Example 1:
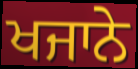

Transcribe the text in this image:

ਖਜਾਨੇ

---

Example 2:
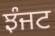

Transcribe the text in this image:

ਝੰਜਟ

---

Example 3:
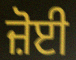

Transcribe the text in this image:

ਜ਼ੋਈ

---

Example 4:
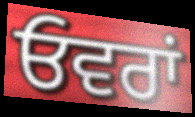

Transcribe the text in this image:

ਓਵਰਾਂ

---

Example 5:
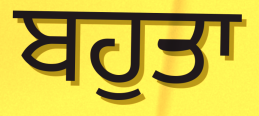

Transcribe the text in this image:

ਬਹੁਤਾ